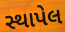
સ્થાપેલ